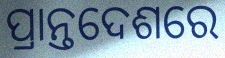
ପ୍ରାନ୍ତଦେଶରେ